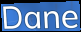
Dane